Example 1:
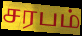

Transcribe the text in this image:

சரபம்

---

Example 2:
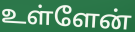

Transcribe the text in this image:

உள்ளேன்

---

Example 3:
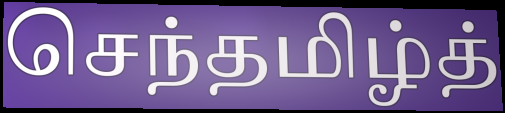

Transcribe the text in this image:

செந்தமிழ்த்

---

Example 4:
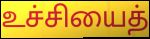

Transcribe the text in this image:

உச்சியைத்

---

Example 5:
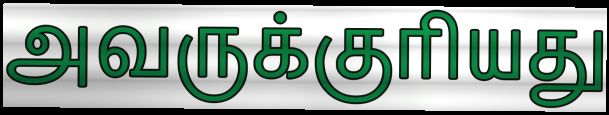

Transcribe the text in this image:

அவருக்குரியது